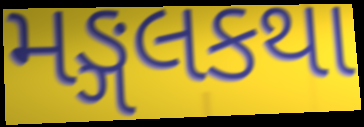
મઙ્ગલકથા